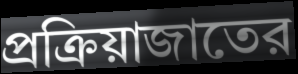
প্রক্রিয়াজাতের